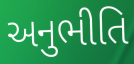
અનુભીતિ